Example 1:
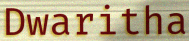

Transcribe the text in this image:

Dwaritha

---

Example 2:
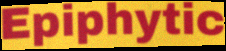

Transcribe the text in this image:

Epiphytic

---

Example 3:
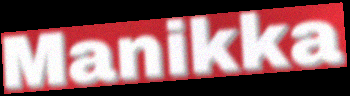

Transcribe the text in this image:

Manikka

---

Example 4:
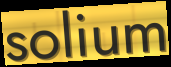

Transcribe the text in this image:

solium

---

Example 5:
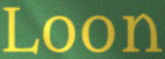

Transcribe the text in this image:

Loon